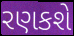
રણકશે